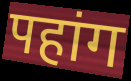
पहांग